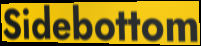
Sidebottom